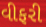
વીફરી